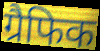
ग्रैफिक